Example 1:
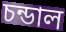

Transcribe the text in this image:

চন্ডাল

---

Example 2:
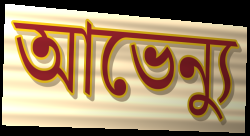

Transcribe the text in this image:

আভেন্যু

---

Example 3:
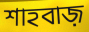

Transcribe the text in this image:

শাহবাজ়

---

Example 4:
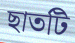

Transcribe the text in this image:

ছাতটি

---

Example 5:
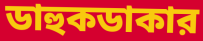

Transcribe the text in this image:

ডাহুকডাকার